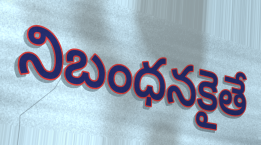
నిబంధనకైతే